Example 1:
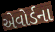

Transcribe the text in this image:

એવોર્ડના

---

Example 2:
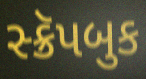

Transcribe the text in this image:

સ્ક્રૅપબુક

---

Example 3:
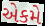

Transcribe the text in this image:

એકમે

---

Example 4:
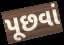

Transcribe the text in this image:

પૂછવાં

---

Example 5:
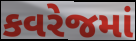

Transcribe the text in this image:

કવરેજમાં